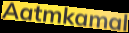
Aatmkamal